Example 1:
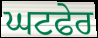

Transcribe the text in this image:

ਘਟਫੇਰ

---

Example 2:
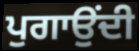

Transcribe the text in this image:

ਪੁਗਾਉਂਦੀ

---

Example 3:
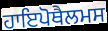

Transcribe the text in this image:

ਹਾਇਪੋਥੈਲਮਸ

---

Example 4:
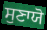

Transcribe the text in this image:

ਸੁਣਾਯੋ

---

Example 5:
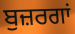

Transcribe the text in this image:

ਬੁਜ਼ਰਗਾਂ